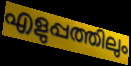
എളുപ്പത്തിലും